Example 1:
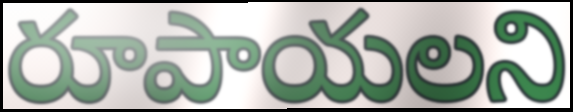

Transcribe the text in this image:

రూపాయలని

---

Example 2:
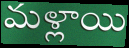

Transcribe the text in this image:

మళ్లాయి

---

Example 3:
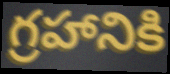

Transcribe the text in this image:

గ్రహానికి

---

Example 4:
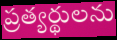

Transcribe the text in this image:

ప్రత్యర్థులను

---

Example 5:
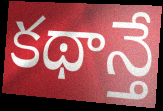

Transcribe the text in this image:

కథాన్తే